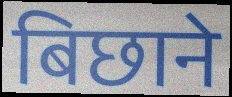
बिछाने